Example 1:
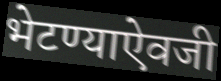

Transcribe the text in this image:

भेटण्याऐवजी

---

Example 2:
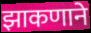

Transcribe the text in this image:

झाकणाने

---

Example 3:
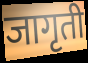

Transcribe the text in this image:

जागृती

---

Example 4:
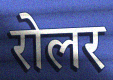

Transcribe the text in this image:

रोलर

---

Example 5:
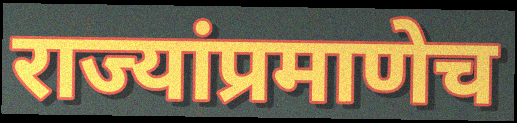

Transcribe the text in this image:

राज्यांप्रमाणेच